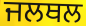
ਜਲਥਲ